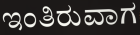
ಇಂತಿರುವಾಗ